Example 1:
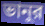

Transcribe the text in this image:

ভানুর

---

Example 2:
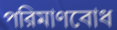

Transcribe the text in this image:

পরিমাণবোধ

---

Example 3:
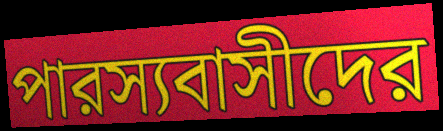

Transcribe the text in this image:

পারস্যবাসীদের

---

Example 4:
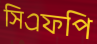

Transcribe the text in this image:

সিএফপি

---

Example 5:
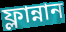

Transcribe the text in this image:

ফ্লান্নান